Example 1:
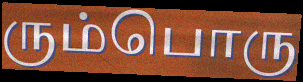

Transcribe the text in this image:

ரும்பொரு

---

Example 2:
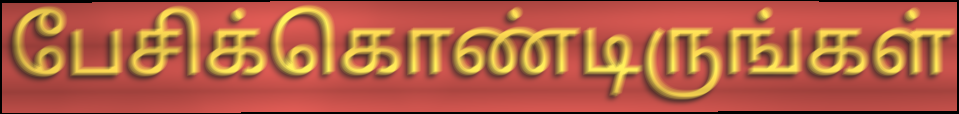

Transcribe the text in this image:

பேசிக்கொண்டிருங்கள்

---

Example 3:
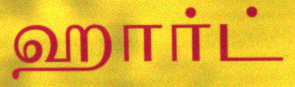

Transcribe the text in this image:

ஹார்ட்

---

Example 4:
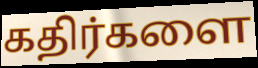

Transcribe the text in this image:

கதிர்களை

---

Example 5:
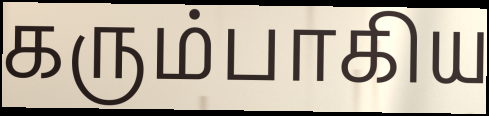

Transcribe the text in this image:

கரும்பாகிய